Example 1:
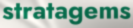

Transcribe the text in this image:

stratagems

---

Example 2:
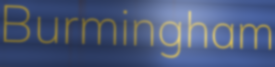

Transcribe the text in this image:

Burmingham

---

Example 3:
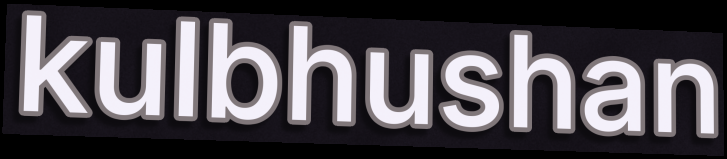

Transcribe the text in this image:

kulbhushan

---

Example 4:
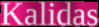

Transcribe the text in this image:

Kalidas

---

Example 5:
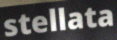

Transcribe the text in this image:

stellata